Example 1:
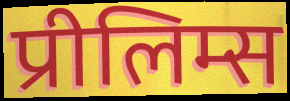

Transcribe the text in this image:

प्रीलिम्स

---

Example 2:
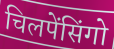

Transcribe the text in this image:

चिलपेंसिंगो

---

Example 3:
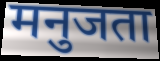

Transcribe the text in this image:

मनुजता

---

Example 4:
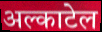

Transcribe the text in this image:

अल्काटेल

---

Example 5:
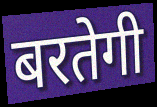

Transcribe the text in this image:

बरतेगी